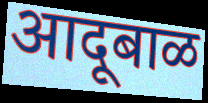
आदूबाळ